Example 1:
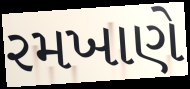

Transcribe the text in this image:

રમખાણે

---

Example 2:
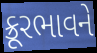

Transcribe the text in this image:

ક્રૂરભાવને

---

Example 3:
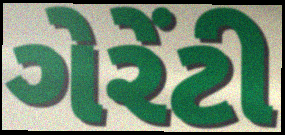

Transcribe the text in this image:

ગેરેંટી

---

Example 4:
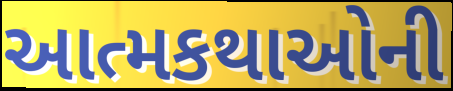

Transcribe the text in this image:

આત્મકથાઓની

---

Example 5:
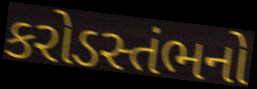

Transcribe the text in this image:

કરોડસ્તંભનો